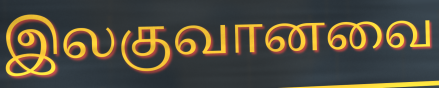
இலகுவானவை